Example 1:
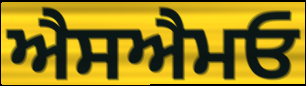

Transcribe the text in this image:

ਐਸਐਮਓ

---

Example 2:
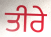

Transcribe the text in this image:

ਤੀਰੇ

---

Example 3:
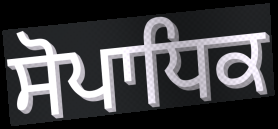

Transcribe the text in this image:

ਸੋਪਾਧਿਕ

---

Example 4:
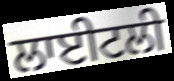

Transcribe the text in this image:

ਲਾਈਟਲੀ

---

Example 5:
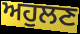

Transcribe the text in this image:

ਅਹੁਲਣ